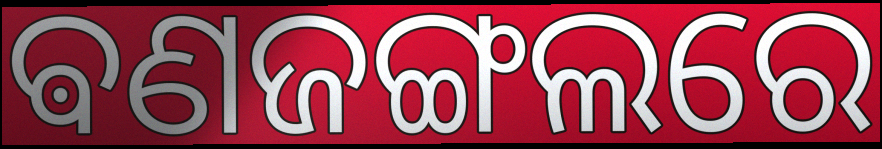
ଵଣଜଙ୍ଗଲରେ